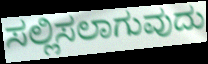
ಸಲ್ಲಿಸಲಾಗುವುದು